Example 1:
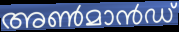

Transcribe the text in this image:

അൺമാൻഡ്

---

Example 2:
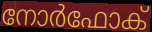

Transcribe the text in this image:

നോർഫോക്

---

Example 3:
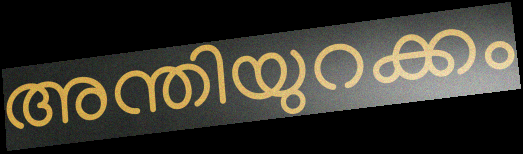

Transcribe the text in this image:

അന്തിയുറക്കം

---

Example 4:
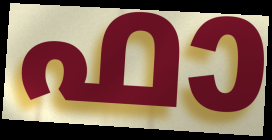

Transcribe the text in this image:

ഫാ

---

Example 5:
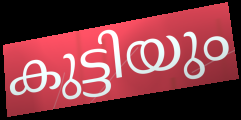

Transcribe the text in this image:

കുട്ടിയും